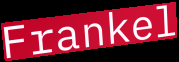
Frankel